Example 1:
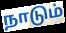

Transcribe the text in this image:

நாடும்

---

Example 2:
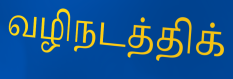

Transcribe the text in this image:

வழிநடத்திக்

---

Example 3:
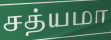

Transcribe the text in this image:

சத்யமா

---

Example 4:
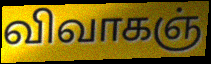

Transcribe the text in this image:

விவாகஞ்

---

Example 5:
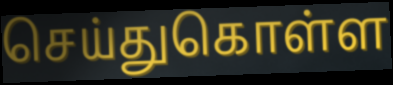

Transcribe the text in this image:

செய்துகொள்ள